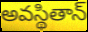
అవస్థితాన్